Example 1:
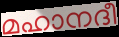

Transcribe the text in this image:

മഹാനദീ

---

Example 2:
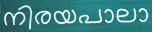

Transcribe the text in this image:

നിരയപാലാ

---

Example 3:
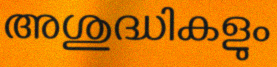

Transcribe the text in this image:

അശുദ്ധികളും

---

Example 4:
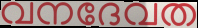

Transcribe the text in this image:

വനദേവത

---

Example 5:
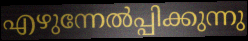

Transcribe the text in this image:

എഴുന്നേൽപ്പിക്കുന്നു